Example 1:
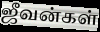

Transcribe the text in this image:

ஜீவன்கள்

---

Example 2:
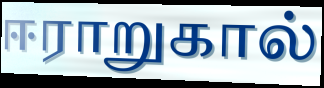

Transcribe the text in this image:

ஈராறுகால்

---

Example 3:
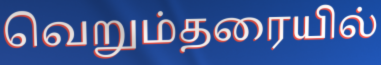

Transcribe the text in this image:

வெறும்தரையில்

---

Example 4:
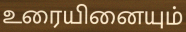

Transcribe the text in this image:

உரையினையும்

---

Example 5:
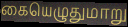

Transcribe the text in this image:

கையெழுதுமாறு